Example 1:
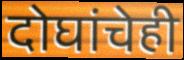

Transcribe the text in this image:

दोघांचेही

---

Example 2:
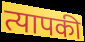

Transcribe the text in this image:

त्यापकी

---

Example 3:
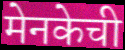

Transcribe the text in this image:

मेनकेची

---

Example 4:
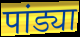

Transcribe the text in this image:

पांड्या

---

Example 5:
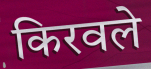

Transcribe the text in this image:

किरवले